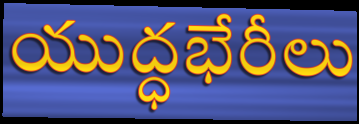
యుద్ధభేరీలు